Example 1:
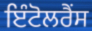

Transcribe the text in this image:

ਇੰਟੋਲਰੈਂਸ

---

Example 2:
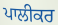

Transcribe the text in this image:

ਪਾਲੀਕਰ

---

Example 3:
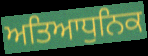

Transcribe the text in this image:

ਅਤਿਆਧੁਨਿਕ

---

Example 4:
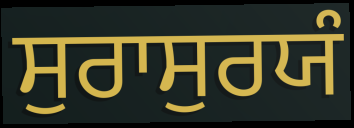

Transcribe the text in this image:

ਸੁਰਾਸੁਰਯੰ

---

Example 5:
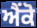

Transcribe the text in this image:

ਐਂਕੋ